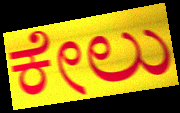
ಕೇಲು